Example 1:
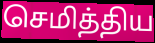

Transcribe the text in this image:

செமித்திய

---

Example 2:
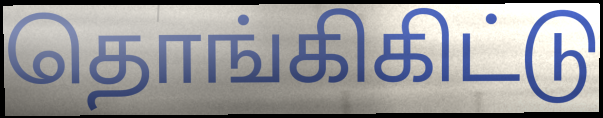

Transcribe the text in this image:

தொங்கிகிட்டு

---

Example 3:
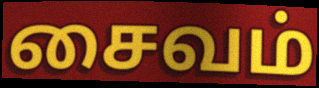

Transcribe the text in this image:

சைவம்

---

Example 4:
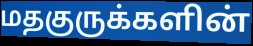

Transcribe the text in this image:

மதகுருக்களின்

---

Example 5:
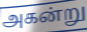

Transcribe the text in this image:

அகன்று